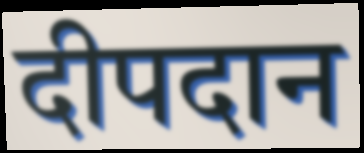
दीपदान